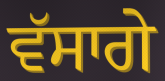
ਵੱਸਾਗੇ